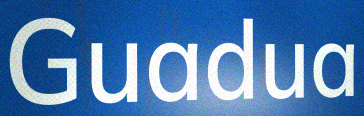
Guadua